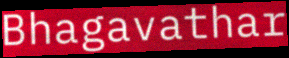
Bhagavathar